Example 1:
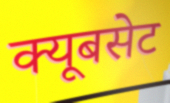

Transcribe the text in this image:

क्यूबसेट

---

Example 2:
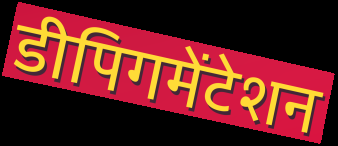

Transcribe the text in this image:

डीपिगमेंटेशन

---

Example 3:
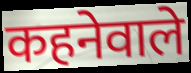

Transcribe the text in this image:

कहनेवाले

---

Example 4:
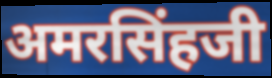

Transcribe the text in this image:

अमरसिंहजी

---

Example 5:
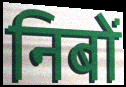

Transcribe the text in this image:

निबों